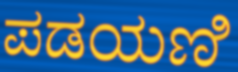
ಪಡಯಣಿ